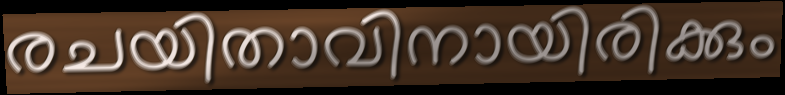
രചയിതാവിനായിരിക്കും